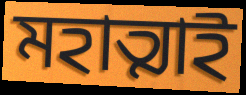
মহাত্মাই